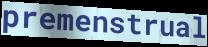
premenstrual